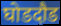
घोडदौड